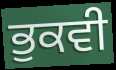
ਭੁਕਵੀ